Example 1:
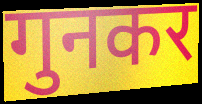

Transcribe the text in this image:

गुनकर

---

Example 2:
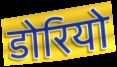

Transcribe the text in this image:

डोरियो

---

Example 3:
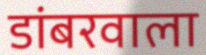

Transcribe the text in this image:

डांबरवाला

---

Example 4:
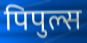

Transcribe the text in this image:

पिपुल्स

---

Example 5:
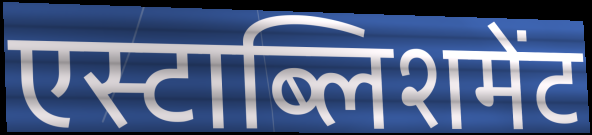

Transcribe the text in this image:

एस्टाब्लिशमेंट